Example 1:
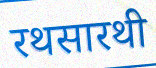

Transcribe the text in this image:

रथसारथी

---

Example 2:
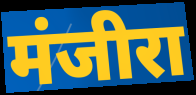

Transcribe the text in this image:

मंजीरा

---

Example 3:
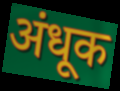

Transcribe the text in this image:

अंधूक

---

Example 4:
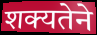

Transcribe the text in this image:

शक्यतेने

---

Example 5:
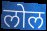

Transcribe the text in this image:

लोल